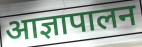
आज्ञापालन